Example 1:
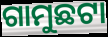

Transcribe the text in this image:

ଗାମୁଛଟା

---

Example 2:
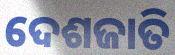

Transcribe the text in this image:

ଦେଶଜାତି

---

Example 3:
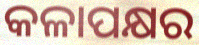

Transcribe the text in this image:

କଳାପକ୍ଷର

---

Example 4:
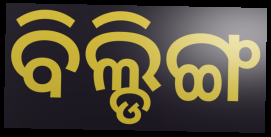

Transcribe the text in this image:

ବିଲ୍ଡିଙ୍ଗ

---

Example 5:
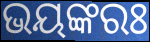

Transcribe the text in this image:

ଭୟଙ୍କରଃ